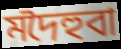
মদৈহুবা